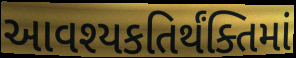
આવશ્યકતિર્થંક્તિમાં